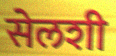
सेलशी